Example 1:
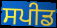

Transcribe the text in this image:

ਸਪੀਡ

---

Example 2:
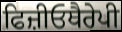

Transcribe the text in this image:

ਫਿਜ਼ੀਓਥੈਰੇਪੀ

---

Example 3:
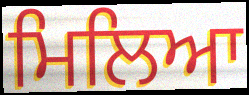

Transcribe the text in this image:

ਮਿਲਿਆ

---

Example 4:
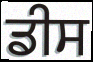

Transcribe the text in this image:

ਡੀਸ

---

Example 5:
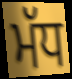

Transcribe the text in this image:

ਮੱਧ